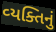
વ્‍યક્તિનું